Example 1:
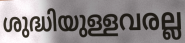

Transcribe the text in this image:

ശുദ്ധിയുള്ളവരല്ല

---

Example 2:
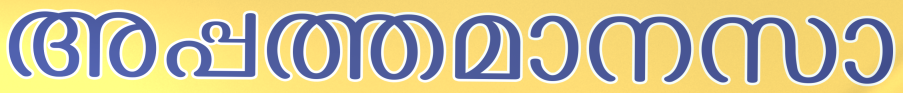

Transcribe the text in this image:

അപ്പത്തമാനസാ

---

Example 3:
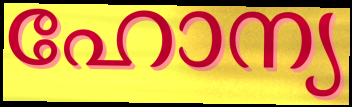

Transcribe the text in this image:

ഹോന്യ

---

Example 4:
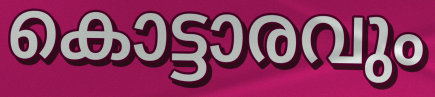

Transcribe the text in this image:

കൊട്ടാരവും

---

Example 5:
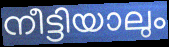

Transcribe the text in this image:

നീട്ടിയാലും